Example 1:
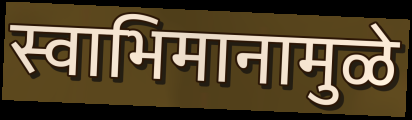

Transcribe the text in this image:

स्वाभिमानामुळे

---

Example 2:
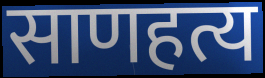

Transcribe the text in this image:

साणहत्य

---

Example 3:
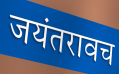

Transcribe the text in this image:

जयंतरावच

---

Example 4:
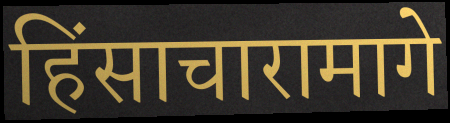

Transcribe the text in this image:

हिंसाचारामागे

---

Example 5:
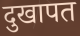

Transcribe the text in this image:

दुखापत